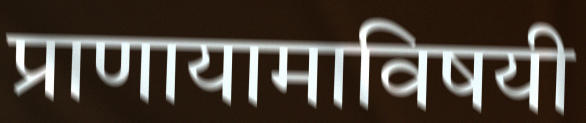
प्राणायामाविषयी